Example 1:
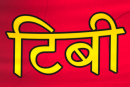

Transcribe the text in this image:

टिबी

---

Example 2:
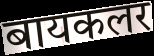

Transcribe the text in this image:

बायकलर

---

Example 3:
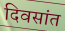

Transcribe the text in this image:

दिवसांत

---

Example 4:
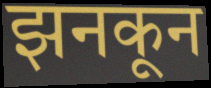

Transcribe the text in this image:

झनकून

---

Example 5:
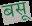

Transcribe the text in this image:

बसू